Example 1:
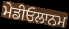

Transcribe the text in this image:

ਮੇਡੀਓਲਾਨਮ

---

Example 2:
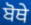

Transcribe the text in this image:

ਬੋਥੇ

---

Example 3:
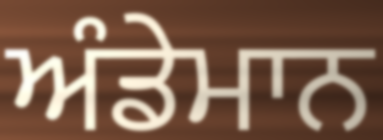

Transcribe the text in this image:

ਅੰਡੇਮਾਨ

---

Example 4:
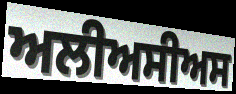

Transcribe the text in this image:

ਅਲੀਅਸੀਅਸ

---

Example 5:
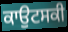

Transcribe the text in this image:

ਕਾਉਟਸਕੀ